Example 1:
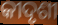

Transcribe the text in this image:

କୀଦୃଶୀ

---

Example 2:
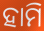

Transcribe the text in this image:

ହାମି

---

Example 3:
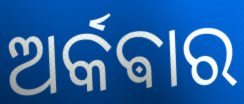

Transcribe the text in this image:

ଅର୍କଵାର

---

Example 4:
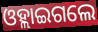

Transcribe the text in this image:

ଓହ୍ଲାଇଗଲେ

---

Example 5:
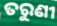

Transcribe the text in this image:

ତରୁଣୀ